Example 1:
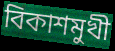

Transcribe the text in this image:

বিকাশমুখী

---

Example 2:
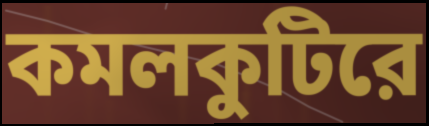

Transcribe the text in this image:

কমলকুটিরে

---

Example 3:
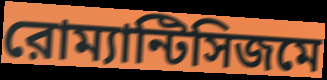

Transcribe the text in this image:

রোম্যান্টিসিজমে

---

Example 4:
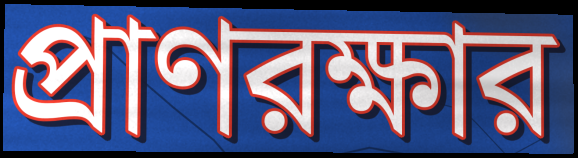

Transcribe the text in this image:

প্রাণরক্ষার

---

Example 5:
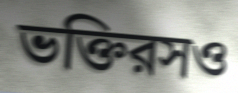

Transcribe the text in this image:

ভক্তিরসও